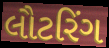
લૌટરિંગ